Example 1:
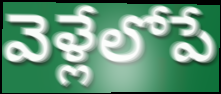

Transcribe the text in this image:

వెళ్లేలోపే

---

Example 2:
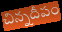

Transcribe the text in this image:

చిన్నదీపం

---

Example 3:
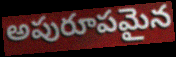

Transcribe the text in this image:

అపురూపమైన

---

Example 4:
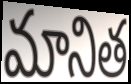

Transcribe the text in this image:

మానిత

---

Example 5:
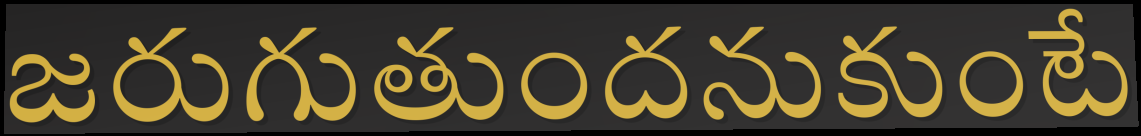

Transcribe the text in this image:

జరుగుతుందనుకుంటే